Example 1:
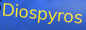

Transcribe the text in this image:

Diospyros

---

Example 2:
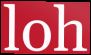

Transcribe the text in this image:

loh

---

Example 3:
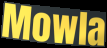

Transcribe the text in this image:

Mowla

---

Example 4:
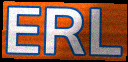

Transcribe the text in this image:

ERL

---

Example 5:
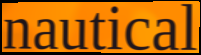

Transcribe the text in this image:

nautical